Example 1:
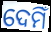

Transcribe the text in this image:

ଦେମିଁ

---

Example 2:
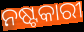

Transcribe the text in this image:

ନଷ୍ଟକାରୀ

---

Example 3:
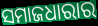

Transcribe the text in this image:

ସମାଜଧାରାର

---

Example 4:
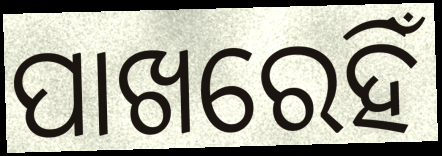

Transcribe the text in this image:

ପାଖରେହିଁ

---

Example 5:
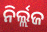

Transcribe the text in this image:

ନିର୍ଲ୍ଲଜ